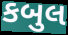
કબુલ